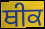
ਥੀਕ